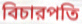
বিচারপতি